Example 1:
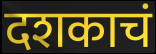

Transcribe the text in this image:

दशकाचं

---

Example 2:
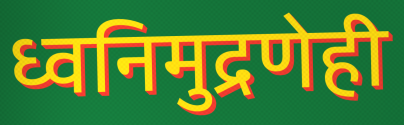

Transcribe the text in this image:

ध्वनिमुद्रणेही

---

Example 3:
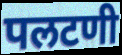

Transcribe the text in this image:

पलटणी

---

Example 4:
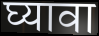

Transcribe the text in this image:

घ्यावा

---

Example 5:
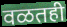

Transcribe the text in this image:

वळतही